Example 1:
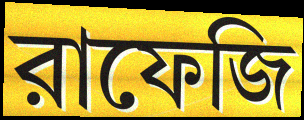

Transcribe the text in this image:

রাফেজি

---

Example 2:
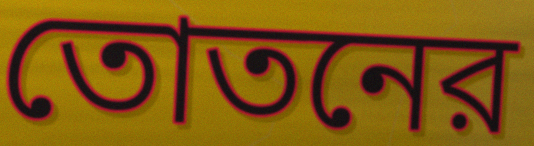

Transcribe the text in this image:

তোতনের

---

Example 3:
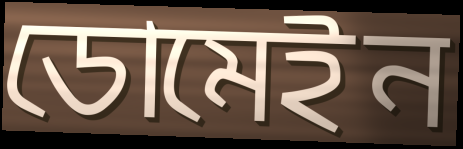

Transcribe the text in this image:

ডোমেইন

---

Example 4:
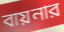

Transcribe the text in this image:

বায়নার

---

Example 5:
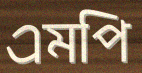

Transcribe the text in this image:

এমপি